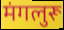
मंगलुरू